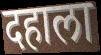
दहाला